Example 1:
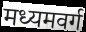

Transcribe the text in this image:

मध्यमवर्ग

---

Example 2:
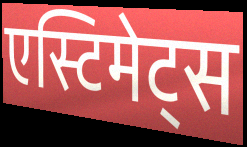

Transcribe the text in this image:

एस्टिमेट्स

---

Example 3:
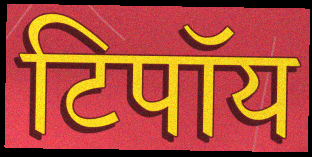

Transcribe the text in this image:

टिपॉय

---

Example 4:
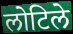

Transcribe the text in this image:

लोटिले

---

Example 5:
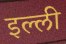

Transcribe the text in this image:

इल्ली